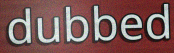
dubbed